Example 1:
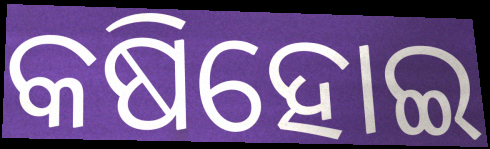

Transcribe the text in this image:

କଷିହୋଇ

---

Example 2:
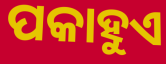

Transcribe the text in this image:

ପକାହୁଏ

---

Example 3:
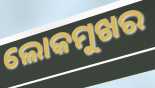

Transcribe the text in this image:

ଲୋକମୁଖର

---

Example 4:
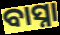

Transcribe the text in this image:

ବାସ୍ନା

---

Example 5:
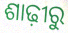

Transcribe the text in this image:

ଶାଢ଼ୀରୁ